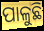
ପାଳୁଛି